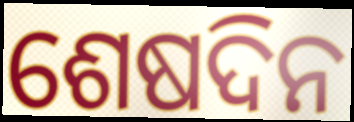
ଶେଷଦିନ